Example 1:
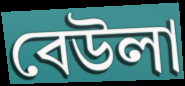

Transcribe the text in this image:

বেউলা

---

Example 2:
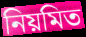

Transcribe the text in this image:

নিয়মিত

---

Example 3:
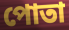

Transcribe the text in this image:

পোতা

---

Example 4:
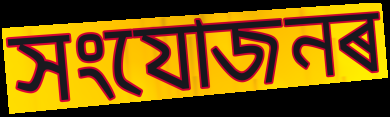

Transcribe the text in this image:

সংযোজনৰ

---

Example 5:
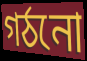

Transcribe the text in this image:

গঠনো